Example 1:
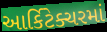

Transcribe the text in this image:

આર્કિટેક્ચરમાં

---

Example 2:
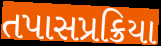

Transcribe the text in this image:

તપાસપ્રક્રિયા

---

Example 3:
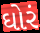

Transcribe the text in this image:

ઘોરં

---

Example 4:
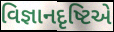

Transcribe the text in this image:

વિજ્ઞાનદૃષ્ટિએ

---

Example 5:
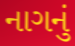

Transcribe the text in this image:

નાગનું